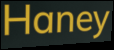
Haney